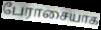
பேராசையாக